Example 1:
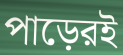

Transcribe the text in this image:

পাড়েরই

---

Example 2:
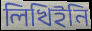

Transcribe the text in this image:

লিখিইনি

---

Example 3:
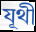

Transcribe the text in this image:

যূথী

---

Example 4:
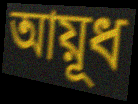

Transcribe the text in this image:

আয়ূধ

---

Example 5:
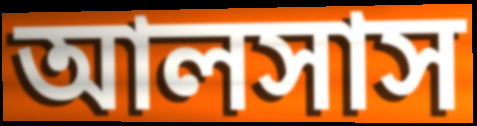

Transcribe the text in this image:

আলসাস